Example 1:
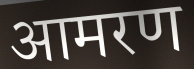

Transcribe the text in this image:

आमरण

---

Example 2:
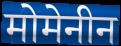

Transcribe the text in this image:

मोमेनीन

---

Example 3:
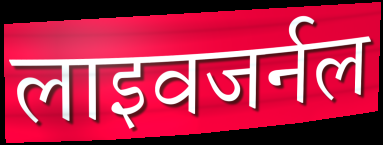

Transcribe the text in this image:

लाइवजर्नल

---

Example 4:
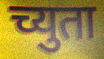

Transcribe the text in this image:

च्युता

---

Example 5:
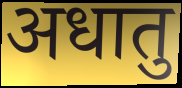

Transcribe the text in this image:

अधातु